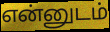
என்னுடம்